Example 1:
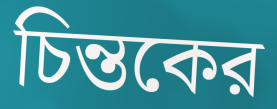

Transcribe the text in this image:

চিন্তকের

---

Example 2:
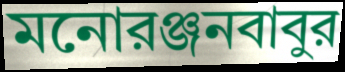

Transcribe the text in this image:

মনোরঞ্জনবাবুর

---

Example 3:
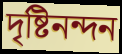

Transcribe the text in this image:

দৃষ্টিনন্দন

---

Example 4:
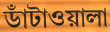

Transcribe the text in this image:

ডাঁটাওয়ালা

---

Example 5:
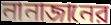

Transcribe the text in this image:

নানাজানের